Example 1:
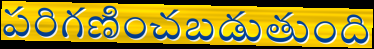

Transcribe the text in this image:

పరిగణించబడుతుంది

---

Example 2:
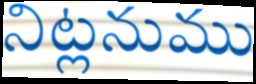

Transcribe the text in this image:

నిట్లనుము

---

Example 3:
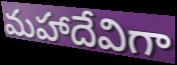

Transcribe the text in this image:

మహాదేవిగా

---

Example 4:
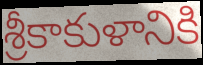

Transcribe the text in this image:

శ్రీకాకుళానికి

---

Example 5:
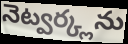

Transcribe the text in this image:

నెట్వర్క్లను